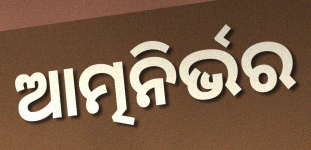
ଆତ୍ମନିର୍ଭର